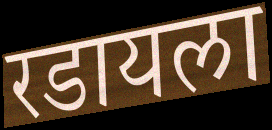
रडायला